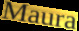
Maura